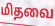
மிதவை